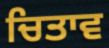
ਚਿਤਾਵ